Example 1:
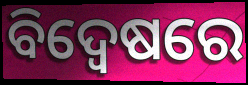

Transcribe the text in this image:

ବିଦ୍ୱେଷରେ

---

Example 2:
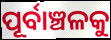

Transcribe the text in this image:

ପୂର୍ବାଞ୍ଚଳକୁ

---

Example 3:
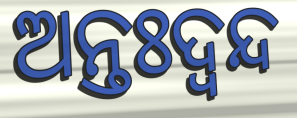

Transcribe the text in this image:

ଅନ୍ତଃଦ୍ବନ୍ଦ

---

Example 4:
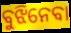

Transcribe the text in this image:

ବୁଝିନେବା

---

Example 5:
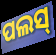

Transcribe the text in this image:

ପଲସ୍